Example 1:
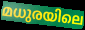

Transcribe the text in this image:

മധുരയിലെ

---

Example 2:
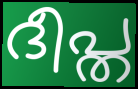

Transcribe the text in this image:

ദീപ്ത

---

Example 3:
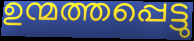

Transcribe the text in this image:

ഉന്മത്തപ്പെട്ടു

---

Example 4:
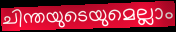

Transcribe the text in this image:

ചിന്തയുടെയുമെല്ലാം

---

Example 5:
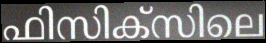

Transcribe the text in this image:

ഫിസിക്സിലെ